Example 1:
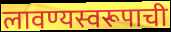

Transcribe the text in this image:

लावण्यस्वरूपाची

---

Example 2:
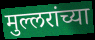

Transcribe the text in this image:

मुल्लरांच्या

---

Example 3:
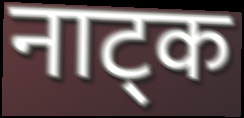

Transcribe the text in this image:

नाट्क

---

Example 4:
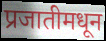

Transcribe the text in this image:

प्रजातीमधून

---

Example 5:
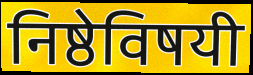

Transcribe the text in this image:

निष्ठेविषयी